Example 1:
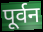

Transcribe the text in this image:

पूर्वन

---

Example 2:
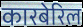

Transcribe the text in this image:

कारबेरिल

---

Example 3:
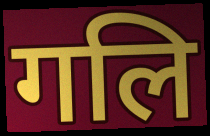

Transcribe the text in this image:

गलि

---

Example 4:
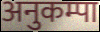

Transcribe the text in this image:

अनुकम्‍पा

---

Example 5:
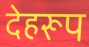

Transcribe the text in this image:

देहरूप